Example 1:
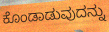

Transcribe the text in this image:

ಕೊಂಡಾಡುವುದನ್ನು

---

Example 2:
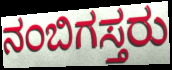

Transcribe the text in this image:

ನಂಬಿಗಸ್ತರು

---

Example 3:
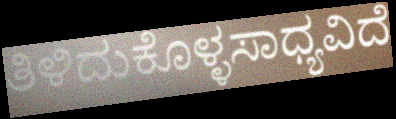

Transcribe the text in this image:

ತಿಳಿದುಕೊಳ್ಳಸಾಧ್ಯವಿದೆ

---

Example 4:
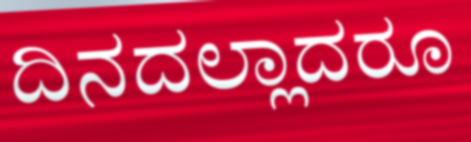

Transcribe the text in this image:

ದಿನದಲ್ಲಾದರೂ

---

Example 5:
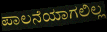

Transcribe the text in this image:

ಪಾಲನೆಯಾಗಲಿಲ್ಲ